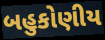
બહુકોણીય